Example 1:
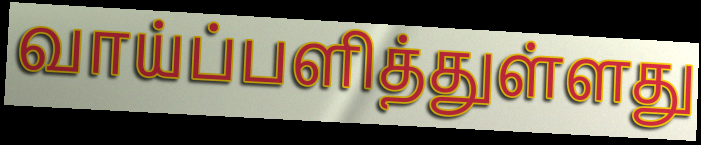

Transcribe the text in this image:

வாய்ப்பளித்துள்ளது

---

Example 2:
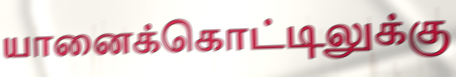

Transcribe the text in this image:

யானைக்கொட்டிலுக்கு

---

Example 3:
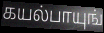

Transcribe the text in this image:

கயல்பாயுங்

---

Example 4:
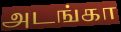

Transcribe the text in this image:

அடங்கா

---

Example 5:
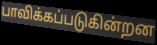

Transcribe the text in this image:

பாவிக்கப்படுகின்றன